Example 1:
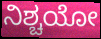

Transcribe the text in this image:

ನಿಶ್ಚಯೋ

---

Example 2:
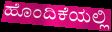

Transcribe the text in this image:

ಹೊಂದಿಕೆಯಲ್ಲಿ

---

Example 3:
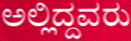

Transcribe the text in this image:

ಅಲ್ಲಿದ್ದವರು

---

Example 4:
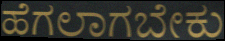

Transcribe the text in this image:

ಹೆಗಲಾಗಬೇಕು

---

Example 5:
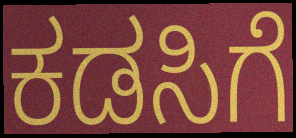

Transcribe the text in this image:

ಕಡಸಿಗೆ